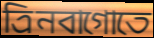
ত্রিনবাগোতে